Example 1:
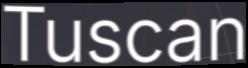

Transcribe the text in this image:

Tuscan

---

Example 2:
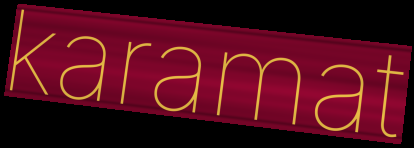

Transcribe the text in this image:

karamat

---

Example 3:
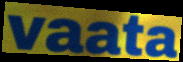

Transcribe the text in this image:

vaata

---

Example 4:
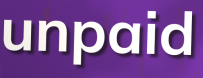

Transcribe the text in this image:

unpaid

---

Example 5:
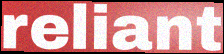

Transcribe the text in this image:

reliant